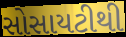
સોસાયટીથી